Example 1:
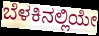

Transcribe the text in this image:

ಬೆಳಕಿನಲ್ಲಿಯೇ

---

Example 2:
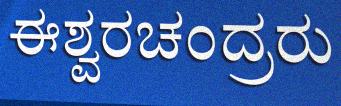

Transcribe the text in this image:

ಈಶ್ವರಚಂದ್ರರು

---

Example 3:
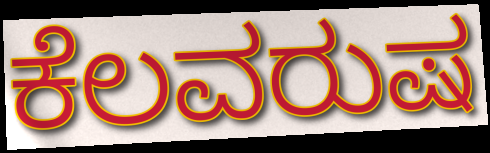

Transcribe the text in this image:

ಕೆಲವರುಷ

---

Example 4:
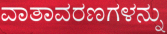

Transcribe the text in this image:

ವಾತಾವರಣಗಳನ್ನು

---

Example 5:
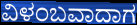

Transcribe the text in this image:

ವಿಳಂಬವಾದಾಗ